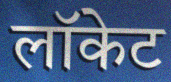
लॉकेट